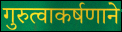
गुरुत्वाकर्षणाने